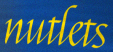
nutlets